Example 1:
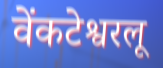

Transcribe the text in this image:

वेंकटेश्वरलू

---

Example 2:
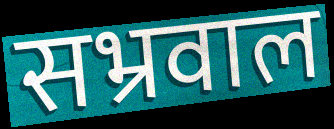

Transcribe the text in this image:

सभ्रवाल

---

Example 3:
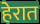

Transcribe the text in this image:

हेरात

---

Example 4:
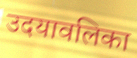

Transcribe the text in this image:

उदयावलिका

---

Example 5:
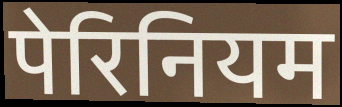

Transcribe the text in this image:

पेरिनियम